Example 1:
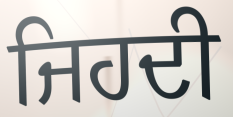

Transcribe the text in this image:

ਜਿਹਦੀ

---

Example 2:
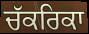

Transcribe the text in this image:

ਚੱਕਰਿਕਾ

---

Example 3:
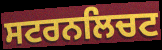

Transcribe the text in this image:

ਸਟਰਨਲਿਚਟ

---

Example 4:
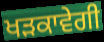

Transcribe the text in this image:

ਖੜਕਾਵੇਗੀ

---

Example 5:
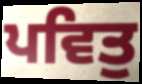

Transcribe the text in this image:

ਪਵਿਤੁ